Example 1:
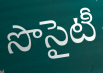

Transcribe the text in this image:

సొసైటీ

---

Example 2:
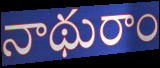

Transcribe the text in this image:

నాథురాం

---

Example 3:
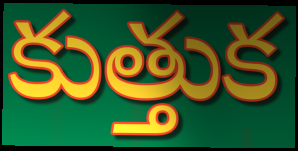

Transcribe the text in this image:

కుత్తుక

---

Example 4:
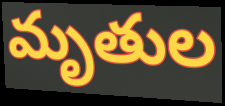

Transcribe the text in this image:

మృతుల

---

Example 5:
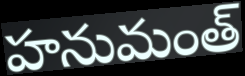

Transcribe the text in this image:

హనుమంత్